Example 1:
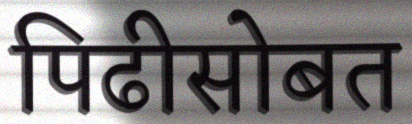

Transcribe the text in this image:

पिढीसोबत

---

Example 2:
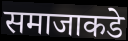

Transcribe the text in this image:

समाजाकडे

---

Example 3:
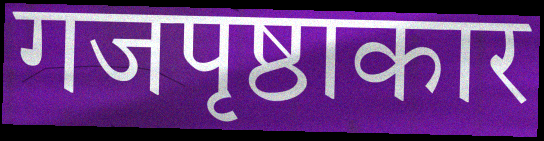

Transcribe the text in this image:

गजपृष्ठाकार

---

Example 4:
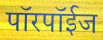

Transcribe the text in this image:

पॉरपॉईज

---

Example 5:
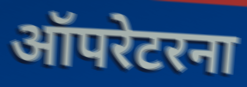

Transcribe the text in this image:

ऑपरेटरना